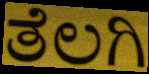
ತೆಲಗಿ